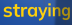
straying